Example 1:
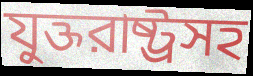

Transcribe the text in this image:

যুক্তরাষ্ট্রসহ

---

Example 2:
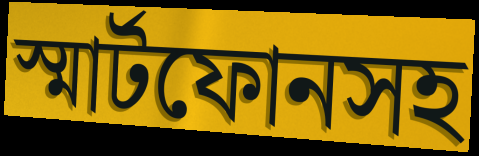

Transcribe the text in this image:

স্মার্টফোনসহ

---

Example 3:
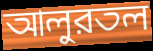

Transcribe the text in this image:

আলুরতল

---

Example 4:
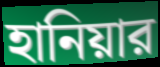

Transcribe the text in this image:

হানিয়ার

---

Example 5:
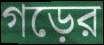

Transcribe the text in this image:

গড়ের